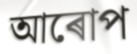
আৰোপ